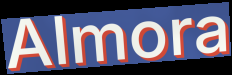
Almora